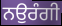
ਨਉਰੰਗੀ